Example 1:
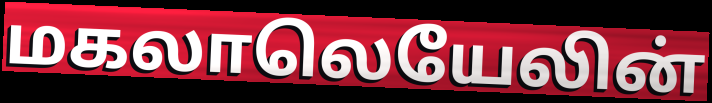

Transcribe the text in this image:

மகலாலெயேலின்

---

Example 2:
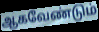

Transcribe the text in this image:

ஆகவேண்டும்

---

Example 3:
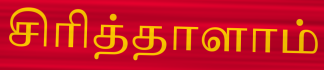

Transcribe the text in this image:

சிரித்தாளாம்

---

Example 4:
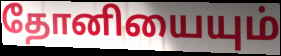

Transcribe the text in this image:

தோனியையும்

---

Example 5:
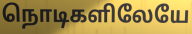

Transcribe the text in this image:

நொடிகளிலேயே